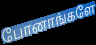
போனாங்களே